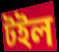
টইল